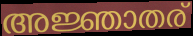
അജ്ഞാതര്